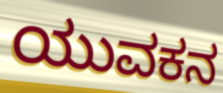
ಯುವಕನ